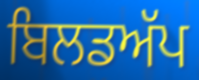
ਬਿਲਡਅੱਪ